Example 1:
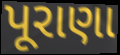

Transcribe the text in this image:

પૂરાણા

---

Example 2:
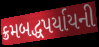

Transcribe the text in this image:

ક્રમબદ્ધપર્યાયની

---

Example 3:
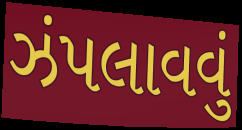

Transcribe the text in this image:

ઝંપલાવવું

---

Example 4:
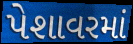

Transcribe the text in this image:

પેશાવરમાં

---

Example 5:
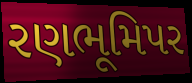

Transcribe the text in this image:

રણભૂમિપર